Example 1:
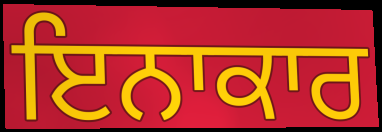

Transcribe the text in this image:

ਇਨਾਕਾਰ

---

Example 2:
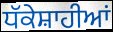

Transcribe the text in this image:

ਧੱਕੇਸ਼ਾਹੀਆਂ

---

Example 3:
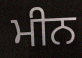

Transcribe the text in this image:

ਮੀਨ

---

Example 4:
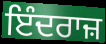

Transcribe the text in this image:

ਇੰਦਰਾਜ਼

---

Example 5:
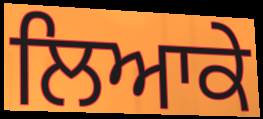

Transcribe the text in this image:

ਲਿਆਕੇ